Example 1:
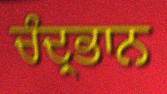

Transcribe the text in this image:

ਚੰਦ੍ਰਭਾਨ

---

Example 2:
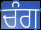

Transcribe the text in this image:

ਚੰਗ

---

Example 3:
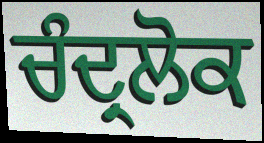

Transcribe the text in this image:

ਚੰਦ੍ਰਲੋਕ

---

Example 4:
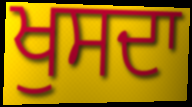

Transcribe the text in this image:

ਖੁਸਦਾ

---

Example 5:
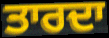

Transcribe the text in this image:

ਤਾਰਦਾ